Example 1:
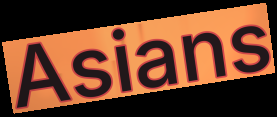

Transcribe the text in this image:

Asians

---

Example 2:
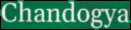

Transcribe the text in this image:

Chandogya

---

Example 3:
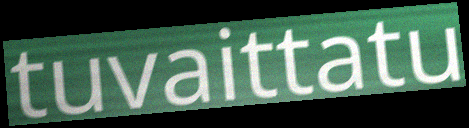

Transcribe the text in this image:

tuvaittatu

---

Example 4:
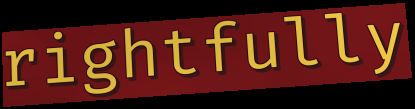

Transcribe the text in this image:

rightfully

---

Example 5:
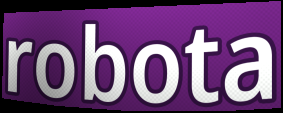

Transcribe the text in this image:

robota